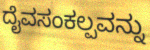
ದೈವಸಂಕಲ್ಪವನ್ನು